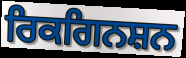
ਰਿਕਗਿਨਸ਼ਨ